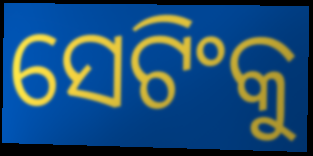
ସେଟିଂକୁ